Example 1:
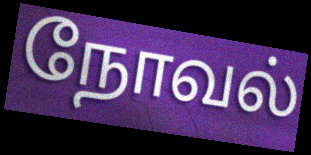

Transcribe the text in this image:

நோவல்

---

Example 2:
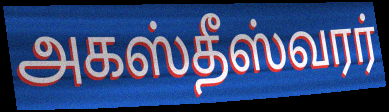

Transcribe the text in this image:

அகஸ்தீஸ்வரர்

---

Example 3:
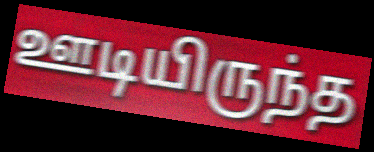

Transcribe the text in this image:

ஊடியிருந்த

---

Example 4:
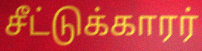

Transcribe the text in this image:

சீட்டுக்காரர்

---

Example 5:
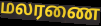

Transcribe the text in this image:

மலரணை